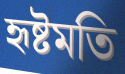
হৃষ্টমতি